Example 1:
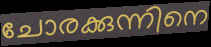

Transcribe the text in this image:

ചോരക്കുന്നിനെ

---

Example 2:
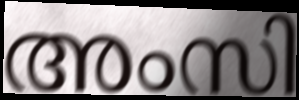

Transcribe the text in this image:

അംസി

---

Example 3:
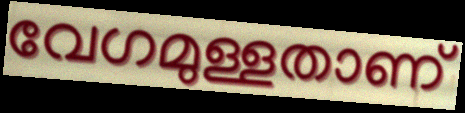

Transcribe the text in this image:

വേഗമുള്ളതാണ്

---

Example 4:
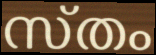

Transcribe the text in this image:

സ്‌തം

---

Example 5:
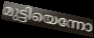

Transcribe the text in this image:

മുട്ടിയെന്നോ